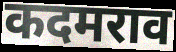
कदमराव